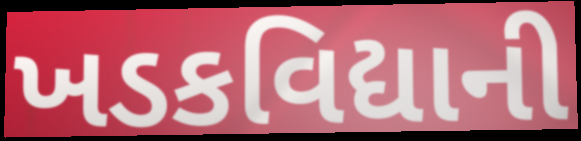
ખડકવિદ્યાની